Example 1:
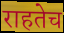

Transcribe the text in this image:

राहतेच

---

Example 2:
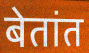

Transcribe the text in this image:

बेतांत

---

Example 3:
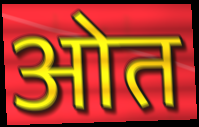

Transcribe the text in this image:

ओत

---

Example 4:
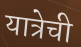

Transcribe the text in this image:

यात्रेची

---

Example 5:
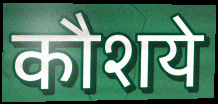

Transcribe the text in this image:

कौशये